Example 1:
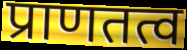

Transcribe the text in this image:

प्राणतत्व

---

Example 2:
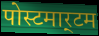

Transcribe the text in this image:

पोस्टमार्टम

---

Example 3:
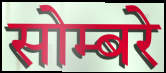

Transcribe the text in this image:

सोम्बरे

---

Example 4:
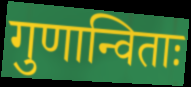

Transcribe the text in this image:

गुणान्विताः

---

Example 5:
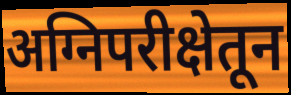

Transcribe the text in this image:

अग्निपरीक्षेतून